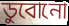
ডুবোনো